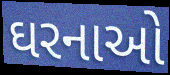
ઘરનાઓ